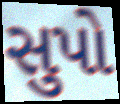
સુપો